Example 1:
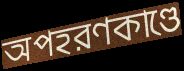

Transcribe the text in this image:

অপহরণকাণ্ডে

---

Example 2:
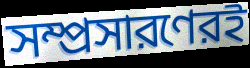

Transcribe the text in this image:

সম্প্রসারণেরই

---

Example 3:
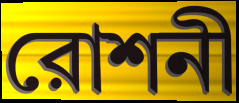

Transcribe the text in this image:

রোশনী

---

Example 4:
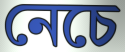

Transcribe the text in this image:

নেচে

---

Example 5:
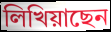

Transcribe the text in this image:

লিখিয়াছেন